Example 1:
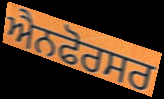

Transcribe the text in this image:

ਐਨਫੋਰਸਰ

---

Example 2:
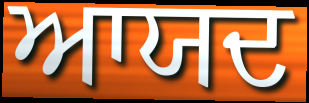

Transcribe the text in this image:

ਆਯਦ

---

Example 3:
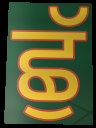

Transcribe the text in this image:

ਛੁੱ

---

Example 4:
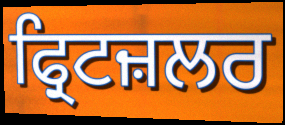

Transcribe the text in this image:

ਫ੍ਰਿਟਜ਼ਲਰ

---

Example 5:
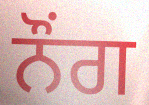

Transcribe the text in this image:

ਨੌਂਗ